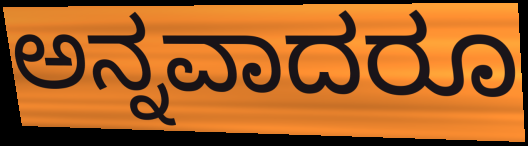
ಅನ್ನವಾದರೂ